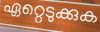
ഏറ്റെടുക്കുക